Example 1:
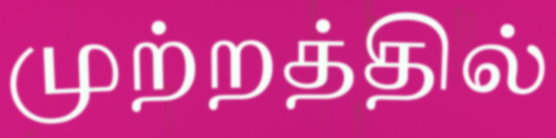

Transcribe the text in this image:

முற்றத்தில்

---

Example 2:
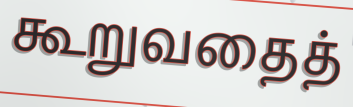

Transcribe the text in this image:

கூறுவதைத்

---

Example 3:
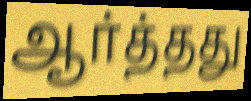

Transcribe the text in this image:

ஆர்த்தது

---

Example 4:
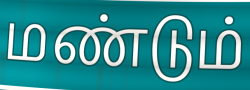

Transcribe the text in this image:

மண்டும்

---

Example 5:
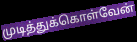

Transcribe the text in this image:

முடித்துக்கொள்வேன்